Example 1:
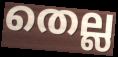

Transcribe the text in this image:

തെല്ല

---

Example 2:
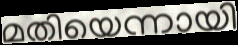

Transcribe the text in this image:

മതിയെന്നായി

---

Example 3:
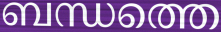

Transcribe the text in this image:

ബന്ധത്തെ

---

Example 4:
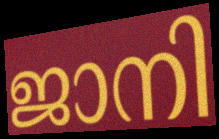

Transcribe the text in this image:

ജാനി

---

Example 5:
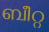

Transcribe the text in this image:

ബീറ്റ